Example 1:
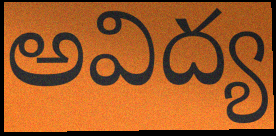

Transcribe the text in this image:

అవిద్య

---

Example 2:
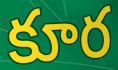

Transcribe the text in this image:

కూర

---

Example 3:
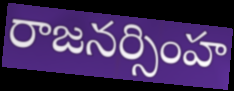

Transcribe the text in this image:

రాజనర్సింహ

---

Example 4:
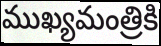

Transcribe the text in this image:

ముఖ్యమంత్రికి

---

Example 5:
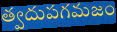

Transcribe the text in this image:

త్వదుపగమజం